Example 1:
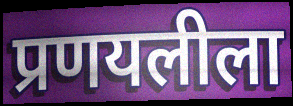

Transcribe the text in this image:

प्रणयलीला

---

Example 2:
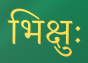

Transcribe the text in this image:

भिक्षुः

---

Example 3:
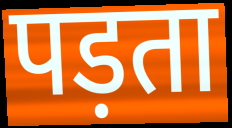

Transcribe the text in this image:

पड़ता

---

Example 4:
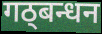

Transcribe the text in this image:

गठ्बन्धन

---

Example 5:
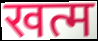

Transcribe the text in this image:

खत्म